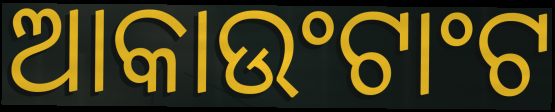
ଆକାଉଂଟାଂଟ